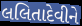
લલિતાદેવીને